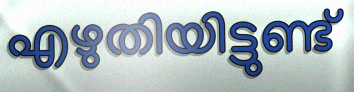
എഴുതിയിട്ടുണ്ട്